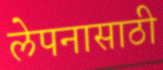
लेपनासाठी